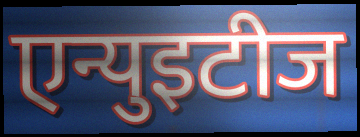
एन्युइटीज